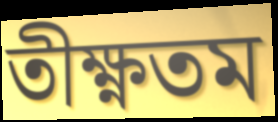
তীক্ষ্ণতম